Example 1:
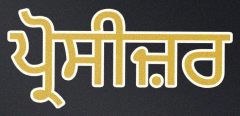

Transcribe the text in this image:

ਪ੍ਰੋਸੀਜ਼ਰ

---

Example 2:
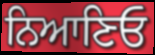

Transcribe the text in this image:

ਨਿਆਣਿਓ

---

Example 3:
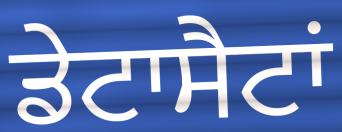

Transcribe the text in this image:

ਡੇਟਾਸੈਟਾਂ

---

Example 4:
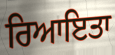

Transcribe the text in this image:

ਰਿਆਇਤਾ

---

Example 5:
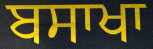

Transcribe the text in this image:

ਬਸਾਖਾ